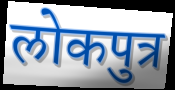
लोकपुत्र